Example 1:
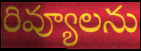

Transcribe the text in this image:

రివ్యూలను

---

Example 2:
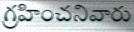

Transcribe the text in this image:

గ్రహించనివారు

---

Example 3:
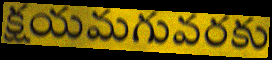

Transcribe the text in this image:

క్షయమగువరకు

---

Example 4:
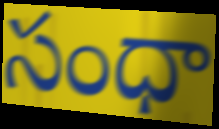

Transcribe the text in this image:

సంధా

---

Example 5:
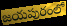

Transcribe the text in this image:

జయపురంలో